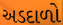
અડદાળો